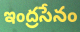
ఇంద్రసేనం